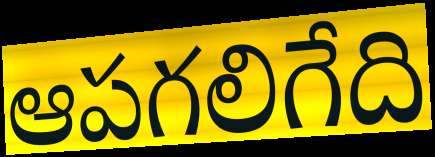
ఆపగలిగేది